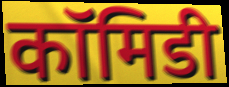
कॉमिडी